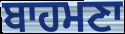
ਬਾਹਮਣਾ